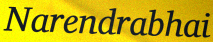
Narendrabhai